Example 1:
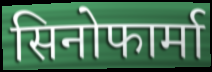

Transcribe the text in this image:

सिनोफार्मा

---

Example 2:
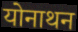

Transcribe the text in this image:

योनाथन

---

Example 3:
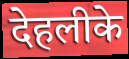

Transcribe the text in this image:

देहलीके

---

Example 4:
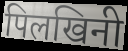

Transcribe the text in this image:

पिलखिनी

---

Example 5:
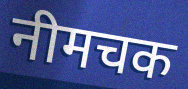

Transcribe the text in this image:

नीमचक